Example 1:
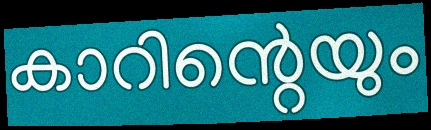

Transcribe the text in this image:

കാറിന്റെയും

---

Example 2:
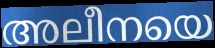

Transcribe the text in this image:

അലീനയെ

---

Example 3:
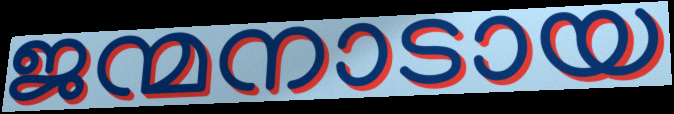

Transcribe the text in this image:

ജന്മനാടായ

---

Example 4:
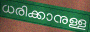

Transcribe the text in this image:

ധരിക്കാനുള്ള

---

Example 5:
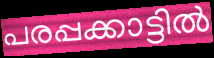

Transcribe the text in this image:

പരപ്പക്കാട്ടിൽ